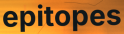
epitopes